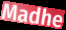
Madhe